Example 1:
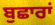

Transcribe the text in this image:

ਬੁਛਾਰਾਂ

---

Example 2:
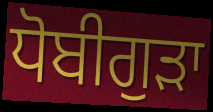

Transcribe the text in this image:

ਧੋਬੀਗੁੜਾ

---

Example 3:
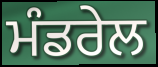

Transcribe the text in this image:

ਮੰਡਰੇਲ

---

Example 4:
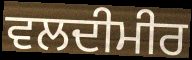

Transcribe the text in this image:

ਵਲਦੀਮੀਰ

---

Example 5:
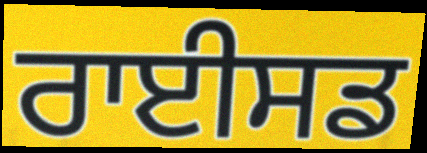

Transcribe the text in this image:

ਰਾਈਸਡ